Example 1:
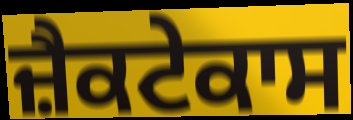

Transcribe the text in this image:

ਜ਼ੈਕਟੇਕਾਸ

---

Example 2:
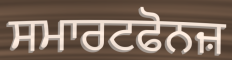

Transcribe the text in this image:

ਸਮਾਰਟਫੋਨਜ਼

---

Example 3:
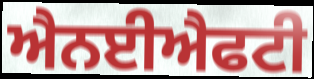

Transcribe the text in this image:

ਐਨਈਐਫਟੀ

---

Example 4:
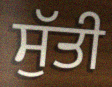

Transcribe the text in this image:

ਸੁੱਤੀ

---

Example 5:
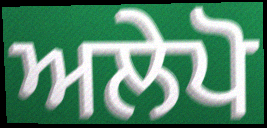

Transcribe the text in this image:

ਅਲੇਪੋ